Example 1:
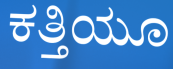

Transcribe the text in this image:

ಕತ್ತಿಯೂ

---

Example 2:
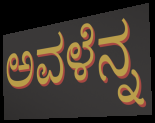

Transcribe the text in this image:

ಅವಳೆನ್ನ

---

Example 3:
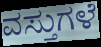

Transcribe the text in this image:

ವಸ್ತುಗಳೆ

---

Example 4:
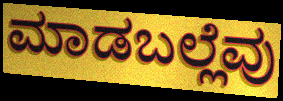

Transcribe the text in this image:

ಮಾಡಬಲ್ಲೆವು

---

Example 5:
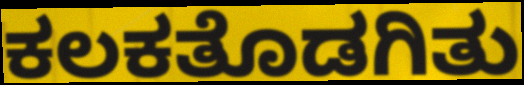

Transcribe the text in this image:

ಕಲಕತೊಡಗಿತು